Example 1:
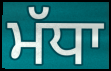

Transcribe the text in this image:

ਮੱਧਾ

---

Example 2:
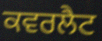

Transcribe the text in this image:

ਕਵਰਲੈਟ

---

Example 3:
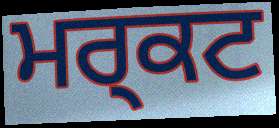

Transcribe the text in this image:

ਮਰ੍ਕਟ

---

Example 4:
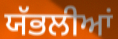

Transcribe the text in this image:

ਯੱਭਲੀਆਂ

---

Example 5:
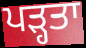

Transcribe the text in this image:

ਪੜ੍ਹਤਾ